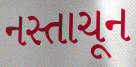
નસ્તાચૂન